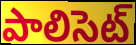
పాలిసెట్